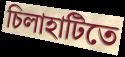
চিলাহাটিতে